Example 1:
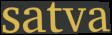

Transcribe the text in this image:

satva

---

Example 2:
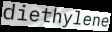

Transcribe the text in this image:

diethylene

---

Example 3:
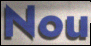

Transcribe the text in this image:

Nou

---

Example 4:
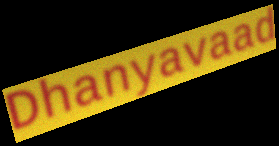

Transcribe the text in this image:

Dhanyavaad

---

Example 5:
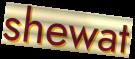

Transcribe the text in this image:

shewat